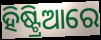
ହିଷ୍ଟ୍ରିଆରେ